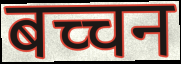
बच्‍चन